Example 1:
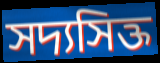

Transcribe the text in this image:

সদ্যসিক্ত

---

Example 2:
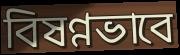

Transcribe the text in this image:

বিষণ্নভাবে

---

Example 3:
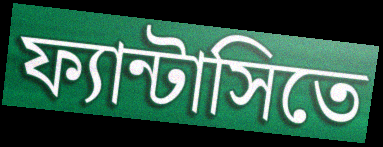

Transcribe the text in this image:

ফ্যান্টাসিতে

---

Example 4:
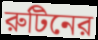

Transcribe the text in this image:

রুটিনের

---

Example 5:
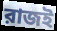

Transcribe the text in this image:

রাজই